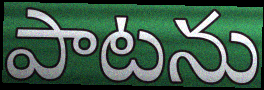
పాటను